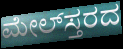
ಮೇಲ್‌ಸ್ತರದ